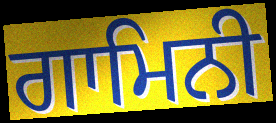
ਗਾਮਿਨੀ